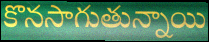
కొనసాగుతున్నాయి